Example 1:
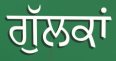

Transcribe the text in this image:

ਗੁੱਲਕਾਂ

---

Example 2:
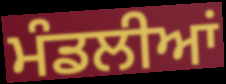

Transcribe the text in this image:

ਮੰਡਲੀਆਂ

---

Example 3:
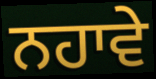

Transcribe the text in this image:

ਨਹਾਵੇ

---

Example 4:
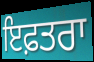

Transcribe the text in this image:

ਇਫ਼ਤਰਾ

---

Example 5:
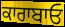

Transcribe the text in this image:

ਕਾਰਾਬਾਓ